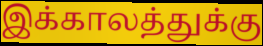
இக்காலத்துக்கு